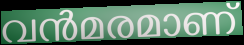
വൻമരമാണ്